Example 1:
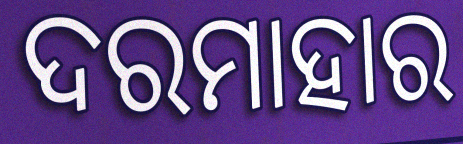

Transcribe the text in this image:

ଦରମାହାର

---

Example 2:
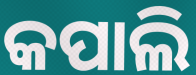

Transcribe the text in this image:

କପାଲି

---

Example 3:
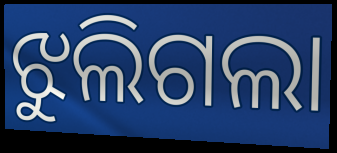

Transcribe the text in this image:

ଝୁଲିଗଲା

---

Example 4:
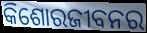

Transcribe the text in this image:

କିଶୋରଜୀବନର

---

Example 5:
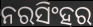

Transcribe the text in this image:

ନରସିଂହର